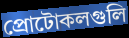
প্রোটোকলগুলি